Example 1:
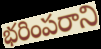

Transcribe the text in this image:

భరింపరాని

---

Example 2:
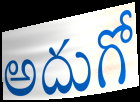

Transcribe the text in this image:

అదుగో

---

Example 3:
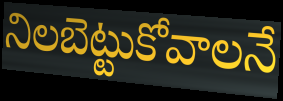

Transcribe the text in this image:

నిలబెట్టుకోవాలనే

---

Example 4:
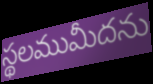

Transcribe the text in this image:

స్థలముమీదను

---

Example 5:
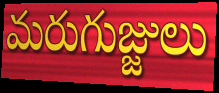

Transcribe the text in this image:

మరుగుజ్జులు